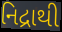
નિદ્રાથી